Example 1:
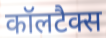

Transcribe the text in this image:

कॉलटैक्स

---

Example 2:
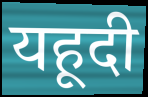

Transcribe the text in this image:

यहूदी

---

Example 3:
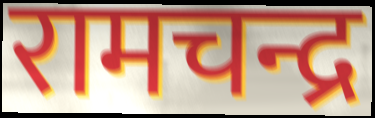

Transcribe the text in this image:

रामचन्द्र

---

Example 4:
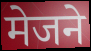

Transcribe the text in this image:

मेजने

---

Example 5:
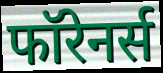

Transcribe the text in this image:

फॉरेनर्स